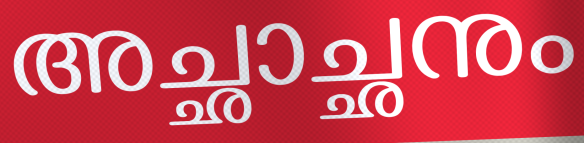
അച്ഛാച്ഛനും